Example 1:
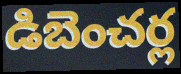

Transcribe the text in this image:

డిబెంచర్ల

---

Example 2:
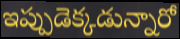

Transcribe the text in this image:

ఇప్పుడెక్కడున్నారో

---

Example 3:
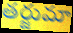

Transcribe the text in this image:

తర్జుమా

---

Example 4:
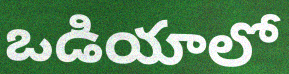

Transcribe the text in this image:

ఒడియాలో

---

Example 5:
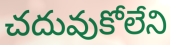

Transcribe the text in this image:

చదువుకోలేని